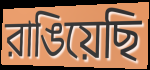
রাঙিয়েছি